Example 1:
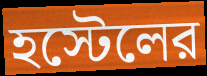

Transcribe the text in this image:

হস্টেলের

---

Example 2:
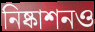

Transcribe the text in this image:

নিষ্কাশনও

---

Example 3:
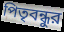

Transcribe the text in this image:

পিতৃবন্ধুর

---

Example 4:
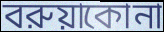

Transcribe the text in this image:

বরুয়াকোনা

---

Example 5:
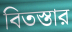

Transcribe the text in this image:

বিতস্তার